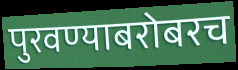
पुरवण्याबरोबरच